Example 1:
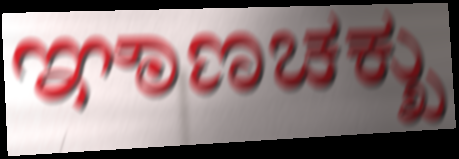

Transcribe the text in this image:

ಞಾಣಚಕ್ಖು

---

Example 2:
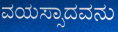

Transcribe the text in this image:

ವಯಸ್ಸಾದವನು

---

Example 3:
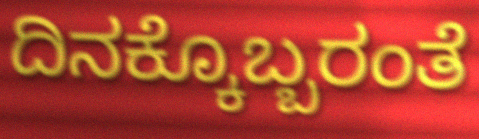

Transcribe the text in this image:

ದಿನಕ್ಕೊಬ್ಬರಂತೆ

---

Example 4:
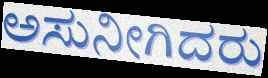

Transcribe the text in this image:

ಅಸುನೀಗಿದರು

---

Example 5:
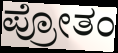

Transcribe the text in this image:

ಪ್ರೋತಂ